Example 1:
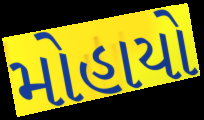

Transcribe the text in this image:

મોહાયો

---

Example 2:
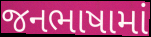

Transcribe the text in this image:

જનભાષામાં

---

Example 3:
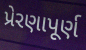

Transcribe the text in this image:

પ્રેરણાપૂર્ણ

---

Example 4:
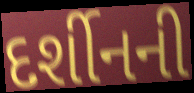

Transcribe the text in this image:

દર્શીનની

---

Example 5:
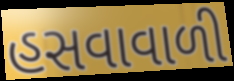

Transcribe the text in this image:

હસવાવાળી